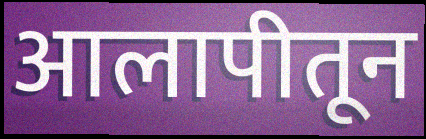
आलापीतून